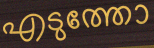
എടുത്തോ